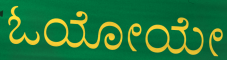
ಓಯೋಯೇ